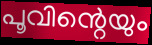
പൂവിന്റെയും